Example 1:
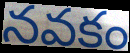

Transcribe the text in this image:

నవకం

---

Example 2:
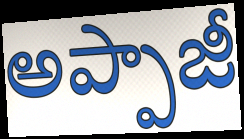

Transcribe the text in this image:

అప్పాజీ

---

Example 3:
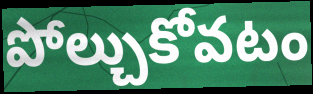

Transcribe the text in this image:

పోల్చుకోవటం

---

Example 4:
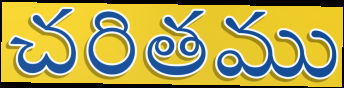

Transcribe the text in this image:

చరితము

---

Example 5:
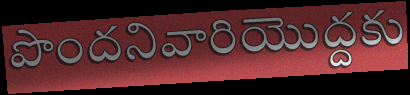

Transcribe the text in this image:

పొందనివారియొద్దకు